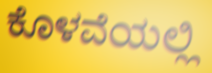
ಕೊಳವೆಯಲ್ಲಿ